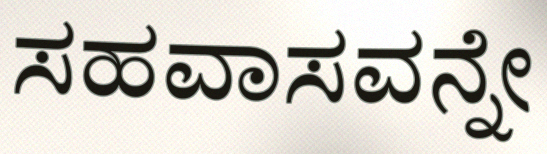
ಸಹವಾಸವನ್ನೇ